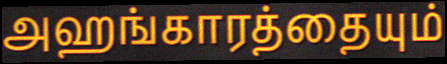
அஹங்காரத்தையும்